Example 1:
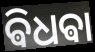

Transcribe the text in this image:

ଵିଧଵା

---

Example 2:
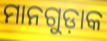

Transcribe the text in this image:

ମାନଗୁଡ଼ାକ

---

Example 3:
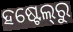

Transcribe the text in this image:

ହଷ୍ଟେଲ୍‍ରୁ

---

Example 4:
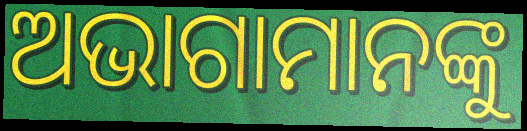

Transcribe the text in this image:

ଅଭାଗାମାନଙ୍କୁ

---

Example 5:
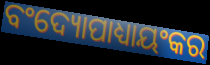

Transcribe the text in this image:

ବଂଦ୍ୟୋପାଧ୍ୟାୟଂକର